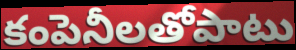
కంపెనీలతోపాటు